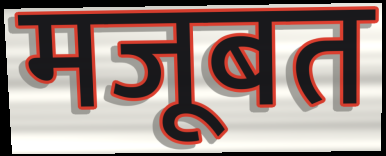
मजूबत